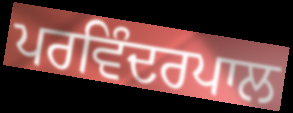
ਪਰਵਿੰਦਰਪਾਲ